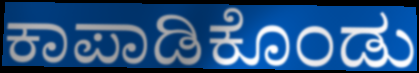
ಕಾಪಾಡಿಕೊಂಡು